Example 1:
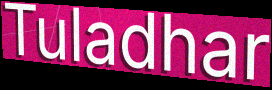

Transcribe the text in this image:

Tuladhar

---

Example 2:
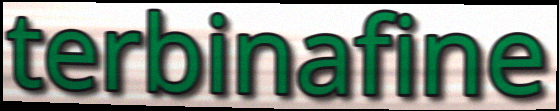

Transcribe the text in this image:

terbinafine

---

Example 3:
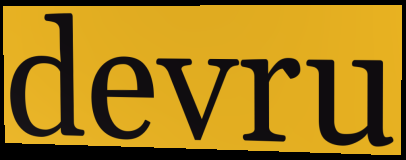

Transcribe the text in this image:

devru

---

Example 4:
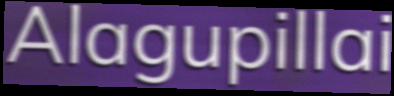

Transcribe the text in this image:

Alagupillai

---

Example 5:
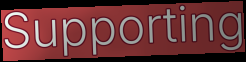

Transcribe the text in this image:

Supporting